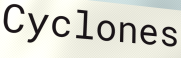
Cyclones